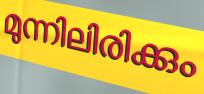
മുന്നിലിരിക്കും